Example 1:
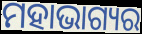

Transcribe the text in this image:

ମହାଭାଗ୍ୟର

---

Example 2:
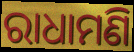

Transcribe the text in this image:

ରାଧାମଣି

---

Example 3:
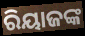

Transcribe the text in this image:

ରିୟାଜଙ୍କ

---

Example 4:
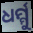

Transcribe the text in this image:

ଧର୍ମ୍ମୁ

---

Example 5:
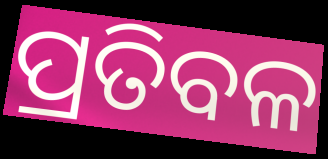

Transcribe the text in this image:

ପ୍ରତିବଳ